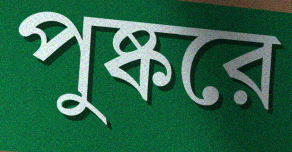
পুষ্করে